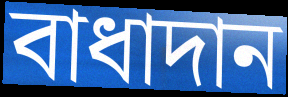
বাধাদান